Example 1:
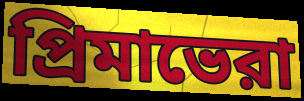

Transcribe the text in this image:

প্রিমাভেরা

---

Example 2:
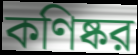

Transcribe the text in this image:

কণিষ্কর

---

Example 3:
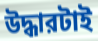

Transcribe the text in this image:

উদ্ধারটাই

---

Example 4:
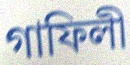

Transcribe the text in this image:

গাফিলী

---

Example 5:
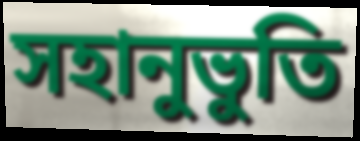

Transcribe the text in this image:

সহানুভুতি